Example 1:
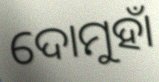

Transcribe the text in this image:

ଦୋମୁହାଁ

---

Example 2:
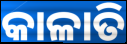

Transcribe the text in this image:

କାଳାତି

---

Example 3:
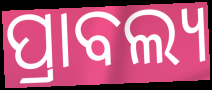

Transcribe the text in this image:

ପ୍ରାବଲ୍ୟ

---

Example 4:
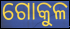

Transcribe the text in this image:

ଗୋକୁଳ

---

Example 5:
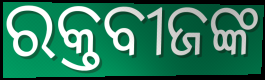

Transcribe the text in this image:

ରକ୍ତବୀଜଙ୍କ